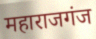
महाराजगंज